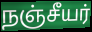
நஞ்சீயர்